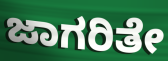
ಜಾಗರಿತೇ